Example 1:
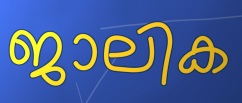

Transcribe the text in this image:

ജാലിക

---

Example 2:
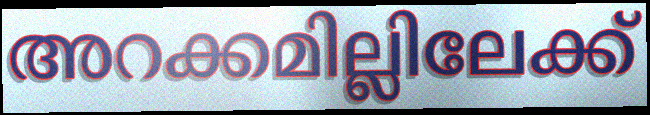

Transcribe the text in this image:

അറക്കമില്ലിലേക്ക്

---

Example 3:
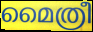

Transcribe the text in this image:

മൈത്രീ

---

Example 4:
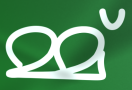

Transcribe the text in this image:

മ്മ്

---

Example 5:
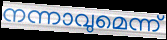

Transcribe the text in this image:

നന്നാവുമെന്ന്